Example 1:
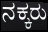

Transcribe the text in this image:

ನಕ್ಕರು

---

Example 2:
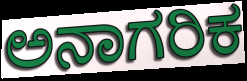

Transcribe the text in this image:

ಅನಾಗರಿಕ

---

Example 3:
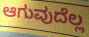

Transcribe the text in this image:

ಆಗುವುದೆಲ್ಲ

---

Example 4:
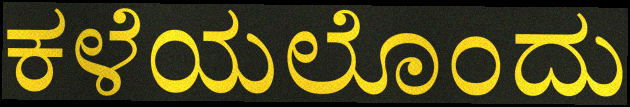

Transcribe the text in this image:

ಕಳೆಯಲೊಂದು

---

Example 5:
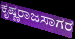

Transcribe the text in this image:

ಕೃಷ್ಣರಾಜಸಾಗರ